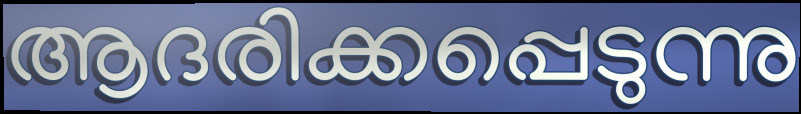
ആദരിക്കപ്പെടുന്നു